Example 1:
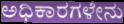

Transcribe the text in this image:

ಅಧಿಕಾರಗಳೇನು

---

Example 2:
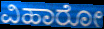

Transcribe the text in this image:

ವಿಹಾರೋ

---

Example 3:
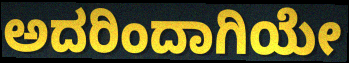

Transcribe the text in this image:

ಅದರಿಂದಾಗಿಯೇ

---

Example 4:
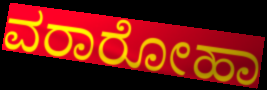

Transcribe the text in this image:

ವರಾರೋಹಾ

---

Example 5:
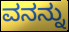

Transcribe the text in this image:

ವನನ್ನು